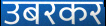
उबरकर